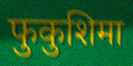
फुकुशिमा